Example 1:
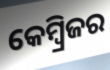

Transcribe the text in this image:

କେମ୍ବ୍ରିଜର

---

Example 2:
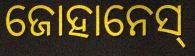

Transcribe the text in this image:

ଜୋହାନେସ୍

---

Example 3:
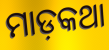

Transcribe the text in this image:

ମାଡ଼କଥା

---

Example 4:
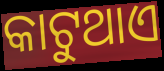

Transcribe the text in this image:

କାଟୁଥାଏ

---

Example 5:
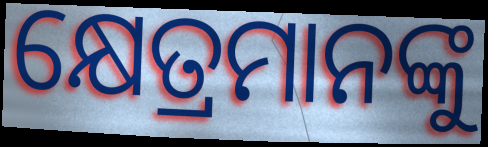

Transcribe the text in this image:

କ୍ଷେତ୍ରମାନଙ୍କୁ